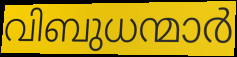
വിബുധന്മാർ